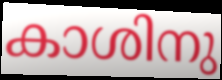
കാശിനു